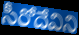
సీరోదేవిని